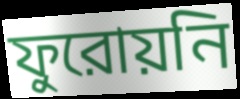
ফুরোয়নি